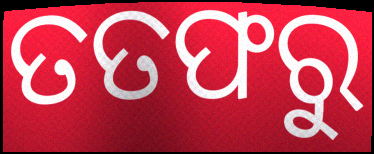
ତତଫରୁ